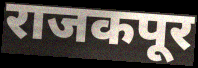
राजकपूर